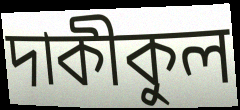
দাকীকুল